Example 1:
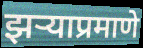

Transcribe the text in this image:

झऱ्याप्रमाणे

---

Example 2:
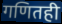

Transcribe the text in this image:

गणितही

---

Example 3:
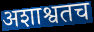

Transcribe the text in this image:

अशाश्वतच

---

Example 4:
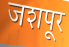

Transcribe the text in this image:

जशपूर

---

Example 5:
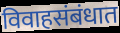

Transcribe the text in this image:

विवाहसंबंधात